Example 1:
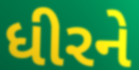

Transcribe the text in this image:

ધીરને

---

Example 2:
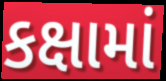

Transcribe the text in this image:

કક્ષામાં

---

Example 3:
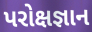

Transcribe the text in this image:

પરોક્ષજ્ઞાન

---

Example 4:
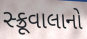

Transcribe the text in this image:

સ્ક્રૂવાલાનો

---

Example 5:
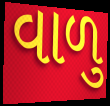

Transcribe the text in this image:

વાળુ